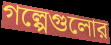
গল্পেগুলোর